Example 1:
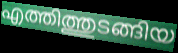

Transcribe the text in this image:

എത്തിത്തുടങ്ങിയ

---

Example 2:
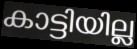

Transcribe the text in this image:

കാട്ടിയില്ല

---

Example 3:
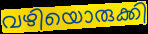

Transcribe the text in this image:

വഴിയൊരുക്കി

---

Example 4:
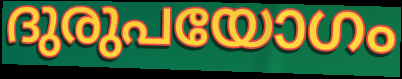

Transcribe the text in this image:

ദുരുപയോഗം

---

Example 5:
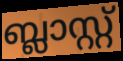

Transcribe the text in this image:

ബ്ലാസ്റ്റ്